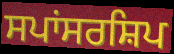
ਸਪਾਂਸਰਸ਼ਿਪ